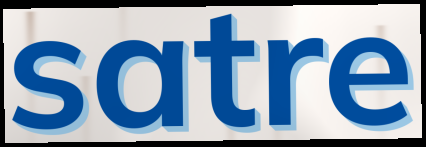
satre